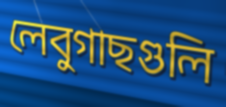
লেবুগাছগুলি